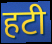
हटी